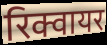
रिक्वायर